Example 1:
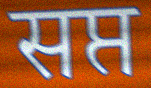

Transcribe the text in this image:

सप्त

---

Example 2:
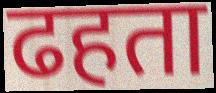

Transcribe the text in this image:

ढहता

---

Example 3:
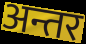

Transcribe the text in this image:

अन्‍तर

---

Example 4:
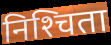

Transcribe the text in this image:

निश्चिता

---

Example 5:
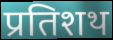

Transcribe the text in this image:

प्रतिशथ